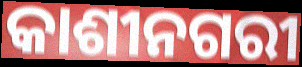
କାଶୀନଗରୀ